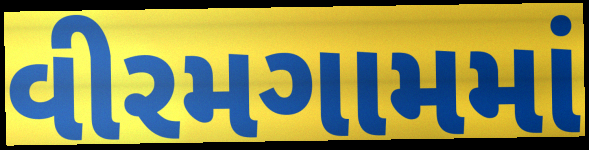
વીરમગામમાં